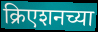
क्रिएशनच्या